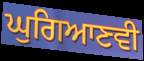
ਘੁਗਿਆਣਵੀ